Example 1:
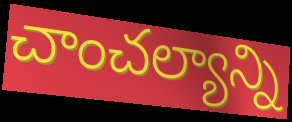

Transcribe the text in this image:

చాంచల్యాన్ని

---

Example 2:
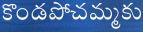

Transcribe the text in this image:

కొండపోచమ్మకు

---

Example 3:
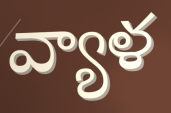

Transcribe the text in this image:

వ్యాళ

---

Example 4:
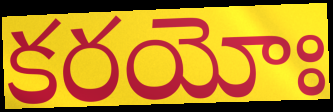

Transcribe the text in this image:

కరయోః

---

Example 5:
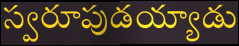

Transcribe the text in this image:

స్వరూపుడయ్యాడు